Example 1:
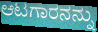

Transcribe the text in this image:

ಆಟಗಾರನನ್ನು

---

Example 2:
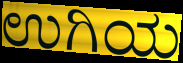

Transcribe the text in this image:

ಉಗಿಯ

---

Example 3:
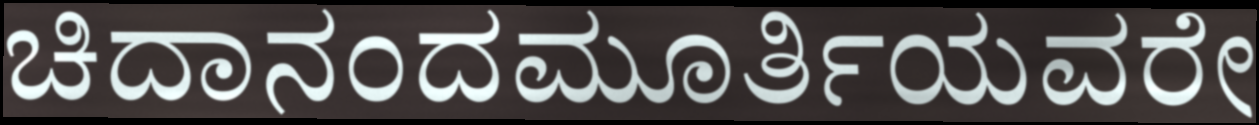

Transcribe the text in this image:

ಚಿದಾನಂದಮೂರ್ತಿಯವರೇ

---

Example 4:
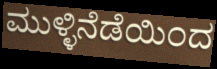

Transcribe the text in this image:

ಮುಳ್ಳಿನೆಡೆಯಿಂದ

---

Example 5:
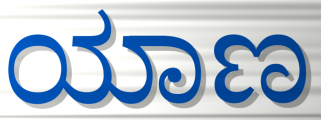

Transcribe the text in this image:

ಯಾಣ